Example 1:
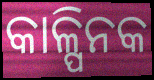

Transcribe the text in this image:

କାଳ୍ପିନକ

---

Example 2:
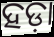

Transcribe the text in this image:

ହଡ଼ା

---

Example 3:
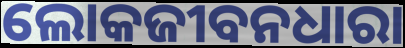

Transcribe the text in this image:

ଲୋକଜୀବନଧାରା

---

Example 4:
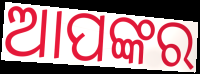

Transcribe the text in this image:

ଆପଙ୍କର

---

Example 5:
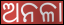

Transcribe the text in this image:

ଅନଳା